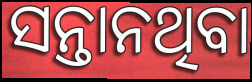
ସନ୍ତାନଥିବା